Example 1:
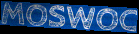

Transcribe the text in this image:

MOSWOC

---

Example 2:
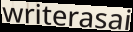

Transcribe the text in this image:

writerasai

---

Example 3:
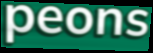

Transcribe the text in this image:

peons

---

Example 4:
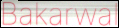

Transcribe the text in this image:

Bakarwal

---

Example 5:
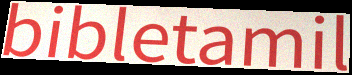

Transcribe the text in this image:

bibletamil